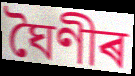
ঘৈণীৰ